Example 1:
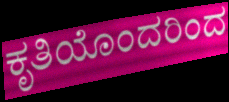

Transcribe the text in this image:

ಕೃತಿಯೊಂದರಿಂದ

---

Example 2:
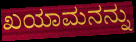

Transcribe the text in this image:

ಖಯಾಮನನ್ನು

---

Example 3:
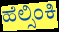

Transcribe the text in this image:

ಹೆಲ್ಸಿಂಕಿ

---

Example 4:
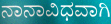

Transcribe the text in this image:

ನಾನಾವಿಧವಾಗಿ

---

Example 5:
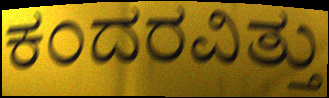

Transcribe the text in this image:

ಕಂದರವಿತ್ತು